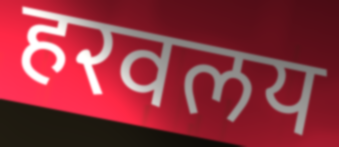
हरवलय